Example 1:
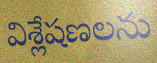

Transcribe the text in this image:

విశ్లేషణలను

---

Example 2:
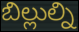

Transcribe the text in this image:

బిల్లుల్ని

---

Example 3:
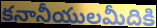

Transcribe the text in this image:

కనానీయులమీదికి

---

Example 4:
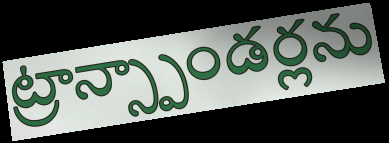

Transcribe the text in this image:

ట్రాన్స్పాండర్లను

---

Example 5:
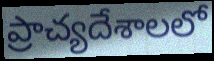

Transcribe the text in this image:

ప్రాచ్యదేశాలలో